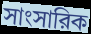
সাংসারিক